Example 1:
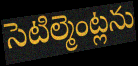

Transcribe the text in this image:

సెటిల్మెంట్లను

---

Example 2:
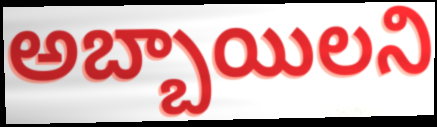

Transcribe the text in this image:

అబ్బాయిలని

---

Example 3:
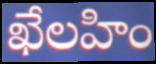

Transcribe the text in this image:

ఖేలహిం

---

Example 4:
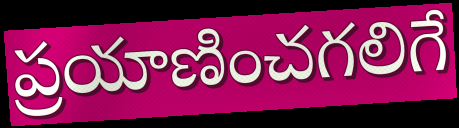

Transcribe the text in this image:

ప్రయాణించగలిగే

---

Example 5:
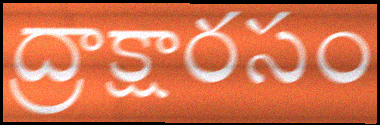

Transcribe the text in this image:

ద్రాక్షారసం